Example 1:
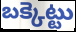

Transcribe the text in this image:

బక్కెట్టు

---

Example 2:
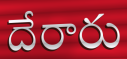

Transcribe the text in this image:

దేరారు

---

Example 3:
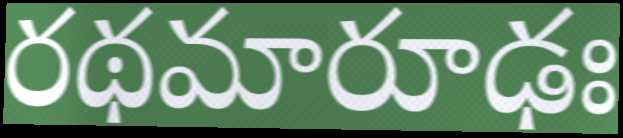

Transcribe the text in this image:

రథమారూఢః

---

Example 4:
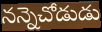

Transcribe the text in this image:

నన్నెచోడుడు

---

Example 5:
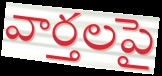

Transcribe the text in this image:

వార్తలపై